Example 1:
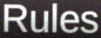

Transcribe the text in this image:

Rules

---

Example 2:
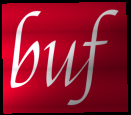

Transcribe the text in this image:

buf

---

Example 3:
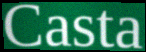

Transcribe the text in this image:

Casta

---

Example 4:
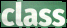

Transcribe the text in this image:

class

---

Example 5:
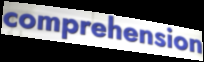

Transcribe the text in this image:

comprehension